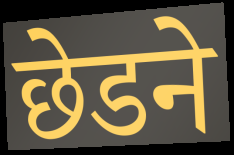
छेडने